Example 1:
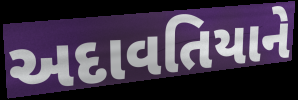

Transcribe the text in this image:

અદાવતિયાને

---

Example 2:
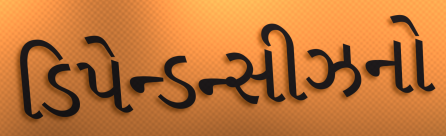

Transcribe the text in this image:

ડિપેન્ડન્સીઝનો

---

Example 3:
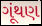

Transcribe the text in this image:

ગૂંથણ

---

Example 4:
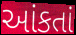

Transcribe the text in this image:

આંકતાં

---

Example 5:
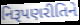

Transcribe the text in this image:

નિરૂપણરીતિને